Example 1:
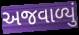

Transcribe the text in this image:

અજવાળ્યું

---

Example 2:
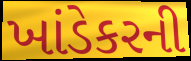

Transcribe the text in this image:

ખાંડેકરની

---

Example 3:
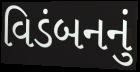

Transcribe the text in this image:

વિડંબનનું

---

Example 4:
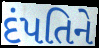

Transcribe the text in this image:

દંપતિને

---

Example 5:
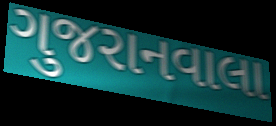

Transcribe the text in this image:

ગુજરાનવાલા